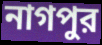
নাগপুর